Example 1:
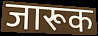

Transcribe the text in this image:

जारूक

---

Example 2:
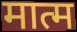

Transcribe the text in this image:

मात्म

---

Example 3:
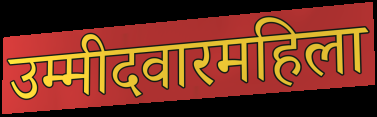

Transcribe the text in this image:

उम्मीदवारमहिला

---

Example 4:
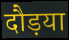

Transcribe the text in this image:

दौड़या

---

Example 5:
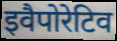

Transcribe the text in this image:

इवैपोरेटिव